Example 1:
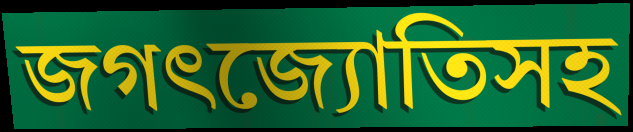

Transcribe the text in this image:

জগৎজ্যোতিসহ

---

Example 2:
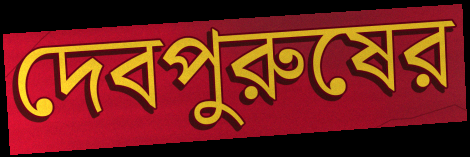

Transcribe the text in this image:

দেবপুরুষের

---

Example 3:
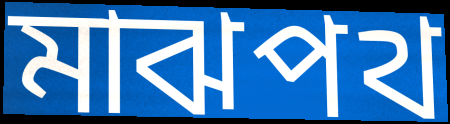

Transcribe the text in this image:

মাঝপথ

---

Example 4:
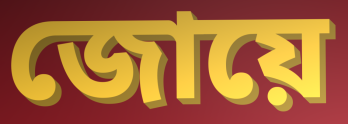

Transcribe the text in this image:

জোয়ে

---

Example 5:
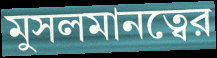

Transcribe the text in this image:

মুসলমানত্বের